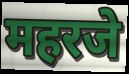
महरजे